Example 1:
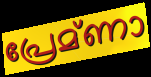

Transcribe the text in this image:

പ്രേമ്ണാ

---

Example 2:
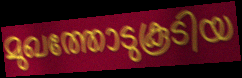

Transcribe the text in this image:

മുഖത്തോടുകൂടിയ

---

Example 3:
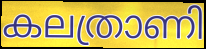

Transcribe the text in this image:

കലത്രാണി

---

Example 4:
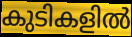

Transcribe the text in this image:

കുടികളിൽ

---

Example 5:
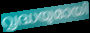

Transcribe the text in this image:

വൃദ്ധയുമായി